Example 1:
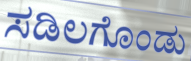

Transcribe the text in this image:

ಸಡಿಲಗೊಂಡು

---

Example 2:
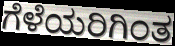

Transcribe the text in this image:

ಗೆಳೆಯರಿಗಿಂತ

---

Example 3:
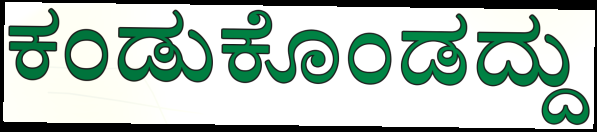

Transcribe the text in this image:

ಕಂಡುಕೊಂಡದ್ದು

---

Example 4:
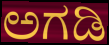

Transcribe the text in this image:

ಅಗಡಿ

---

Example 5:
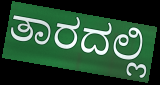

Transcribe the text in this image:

ತಾರದಲ್ಲಿ